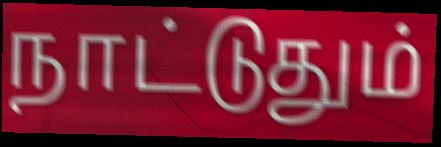
நாட்டுதும்